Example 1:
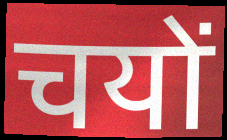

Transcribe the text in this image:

चयों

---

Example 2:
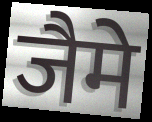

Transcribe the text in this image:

जैमे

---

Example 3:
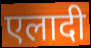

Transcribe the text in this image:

एलादी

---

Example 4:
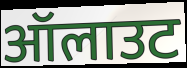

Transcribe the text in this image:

ऑलाउट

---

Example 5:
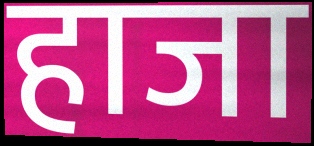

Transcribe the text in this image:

हाजा